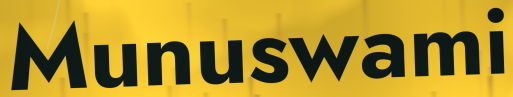
Munuswami